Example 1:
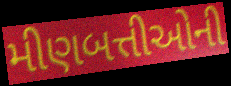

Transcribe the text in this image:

મીણબત્તીઓની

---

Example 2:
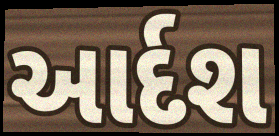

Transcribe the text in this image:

આર્દશ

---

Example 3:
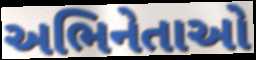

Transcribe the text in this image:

અભિનેતાઓ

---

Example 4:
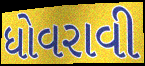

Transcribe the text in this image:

ધોવરાવી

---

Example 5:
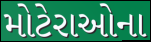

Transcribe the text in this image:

મોટેરાઓના